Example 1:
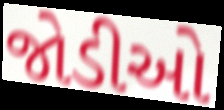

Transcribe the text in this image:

જોડીઓ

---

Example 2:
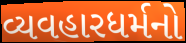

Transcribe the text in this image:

વ્યવહારધર્મનો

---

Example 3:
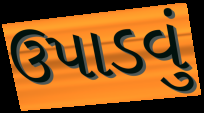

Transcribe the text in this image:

ઉપાડવું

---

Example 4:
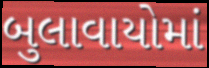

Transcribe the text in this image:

બુલાવાયોમાં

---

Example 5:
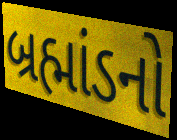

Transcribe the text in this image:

બ્રહ્માંડનો